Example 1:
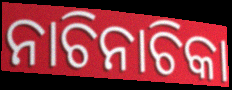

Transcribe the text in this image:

ନାଚିନାଚିକା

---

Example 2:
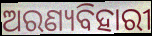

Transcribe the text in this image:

ଅରଣ୍ୟବିହାରୀ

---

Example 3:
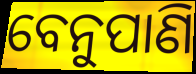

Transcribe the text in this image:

ବେନୁପାଣି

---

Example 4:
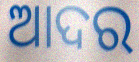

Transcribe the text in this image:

ଆଦର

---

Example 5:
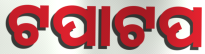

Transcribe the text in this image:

ଟପାଟପ